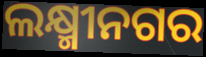
ଲକ୍ଷ୍ମୀନଗର